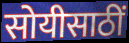
सोयीसाठीं